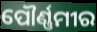
ପୌର୍ଣ୍ଣମୀର